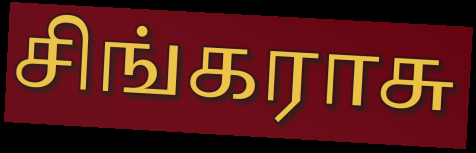
சிங்கராசு